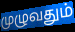
முழுவதும்